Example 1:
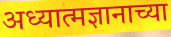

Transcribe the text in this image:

अध्यात्मज्ञानाच्या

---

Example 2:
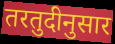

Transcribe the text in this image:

तरतुदीनुसार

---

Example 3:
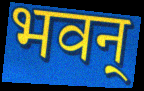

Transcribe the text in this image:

भवन्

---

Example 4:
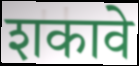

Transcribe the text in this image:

शकावे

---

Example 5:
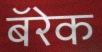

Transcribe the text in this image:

बॅरेक